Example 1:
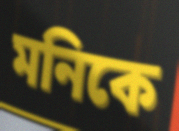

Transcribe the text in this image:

মনিকে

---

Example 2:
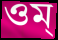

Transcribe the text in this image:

ওম্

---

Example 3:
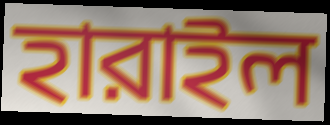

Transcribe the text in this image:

হারাইল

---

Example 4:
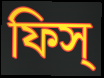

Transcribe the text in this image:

ফিস্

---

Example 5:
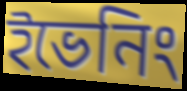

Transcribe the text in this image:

ইভেনিং